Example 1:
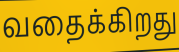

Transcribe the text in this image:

வதைக்கிறது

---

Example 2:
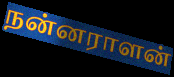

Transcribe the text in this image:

நன்னராளன்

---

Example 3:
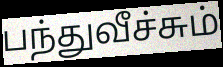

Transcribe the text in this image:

பந்துவீச்சும்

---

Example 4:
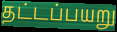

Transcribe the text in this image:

தட்டப்பயறு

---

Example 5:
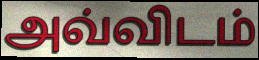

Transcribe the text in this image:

அவ்விடம்